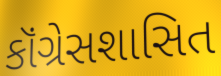
કૉંગ્રેસશાસિત